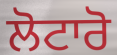
ਲੋਟਾਰੋ